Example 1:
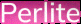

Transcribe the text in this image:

Perlite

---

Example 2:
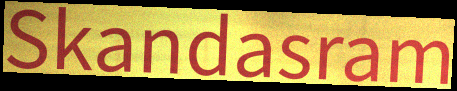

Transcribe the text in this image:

Skandasram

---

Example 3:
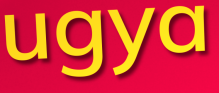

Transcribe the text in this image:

ugya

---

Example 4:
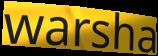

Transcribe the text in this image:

warsha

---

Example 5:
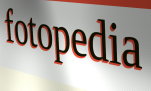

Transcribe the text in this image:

fotopedia